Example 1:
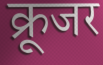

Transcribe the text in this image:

क्रूजर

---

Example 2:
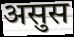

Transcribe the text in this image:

असुस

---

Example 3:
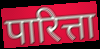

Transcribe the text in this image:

पारित्ता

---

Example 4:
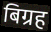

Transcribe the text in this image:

बिग्रह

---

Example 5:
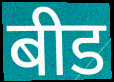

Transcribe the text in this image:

बीड